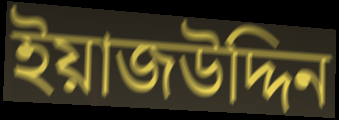
ইয়াজউদ্দিন